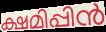
ക്ഷമിപ്പിൻ